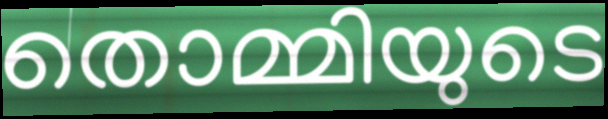
തൊമ്മിയുടെ